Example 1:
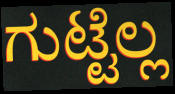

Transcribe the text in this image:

ಗುಟ್ಟೆಲ್ಲ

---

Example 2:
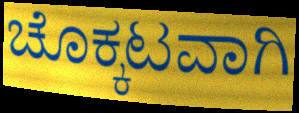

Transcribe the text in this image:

ಚೊಕ್ಕಟವಾಗಿ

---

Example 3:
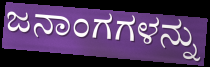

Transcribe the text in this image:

ಜನಾಂಗಗಳನ್ನು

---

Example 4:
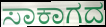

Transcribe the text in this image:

ಸಾಕಾಗದ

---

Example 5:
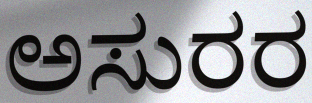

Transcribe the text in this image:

ಅಸುರರ